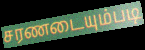
சரணடையும்படி